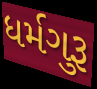
ધર્મગુરૂ